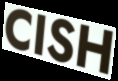
CISH